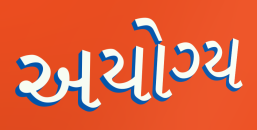
અયોગ્ય